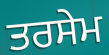
ਤਰਸੇਮ